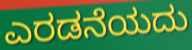
ಎರಡನೆಯದು